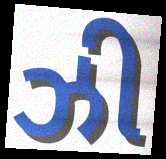
ઝી